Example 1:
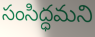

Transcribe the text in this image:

సంసిద్ధమని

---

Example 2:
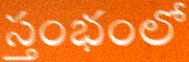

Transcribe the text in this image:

స్తంభంలో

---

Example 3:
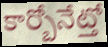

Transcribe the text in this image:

కార్బోనేట్తో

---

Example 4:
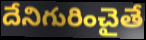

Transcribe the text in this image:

దేనిగురించైతే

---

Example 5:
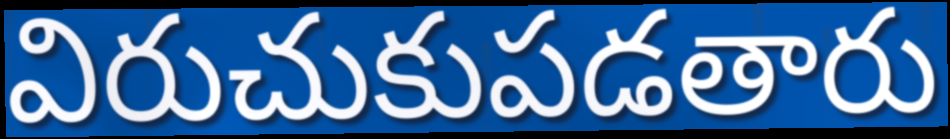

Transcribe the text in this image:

విరుచుకుపడతారు